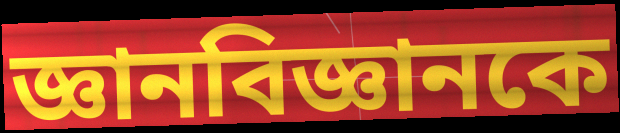
জ্ঞানবিজ্ঞানকে